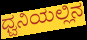
ಧ್ವನಿಯಲ್ಲಿನ